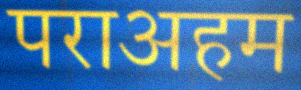
पराअहम